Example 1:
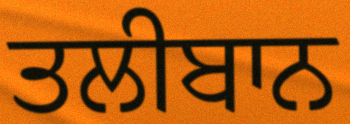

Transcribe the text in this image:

ਤਲੀਬਾਨ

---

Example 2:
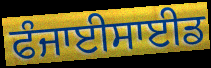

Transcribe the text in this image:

ਫੰਜਾਈਸਾਈਡ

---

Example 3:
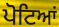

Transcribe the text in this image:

ਪੋਟਿਆਂ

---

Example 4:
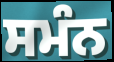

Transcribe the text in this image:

ਸਮੰਨ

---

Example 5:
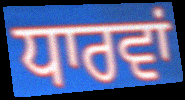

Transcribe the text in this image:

ਧਾਰਵਾਂ